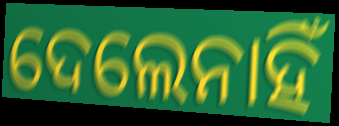
ଦେଲେନାହିଁ